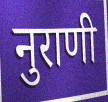
नुराणी